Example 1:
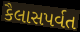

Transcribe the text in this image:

કૈલાસપર્વત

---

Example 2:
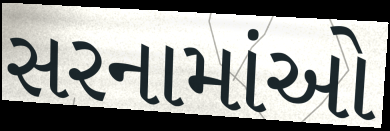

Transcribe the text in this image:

સરનામાંઓ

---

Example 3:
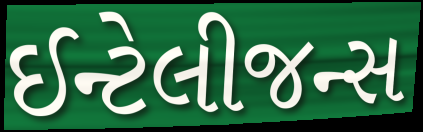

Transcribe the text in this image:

ઈન્ટેલીજન્સ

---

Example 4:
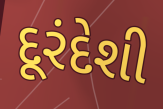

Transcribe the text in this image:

દૂરંદેશી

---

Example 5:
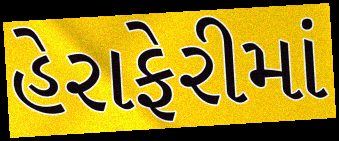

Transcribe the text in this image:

હેરાફેરીમાં